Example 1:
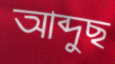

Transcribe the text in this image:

আব্দুছ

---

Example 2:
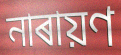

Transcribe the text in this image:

নাৰায়ণ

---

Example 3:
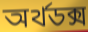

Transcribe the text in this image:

অৰ্থডক্স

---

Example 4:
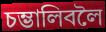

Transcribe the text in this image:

চম্ভালিবলৈ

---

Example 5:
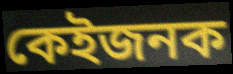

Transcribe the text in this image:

কেইজনক